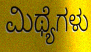
ಮಿಥ್ಯೆಗಳು